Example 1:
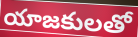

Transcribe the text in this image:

యాజకులతో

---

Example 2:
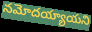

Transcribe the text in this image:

నమోదయ్యాయని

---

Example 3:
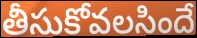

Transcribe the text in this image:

తీసుకోవలసిందే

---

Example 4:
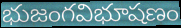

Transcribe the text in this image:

భుజంగవిభూషణం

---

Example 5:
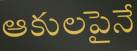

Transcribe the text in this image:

ఆకులపైనే